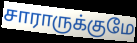
சாராருக்குமே